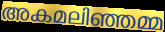
അകമലിഞ്ഞമ്മ